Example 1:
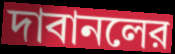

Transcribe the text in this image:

দাবানলের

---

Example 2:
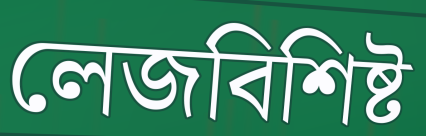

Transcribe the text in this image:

লেজবিশিষ্ট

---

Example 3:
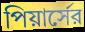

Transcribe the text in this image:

পিয়ার্সের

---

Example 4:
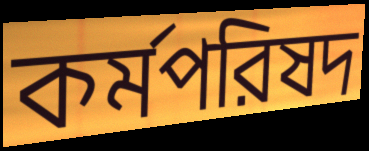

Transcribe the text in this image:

কর্মপরিষদ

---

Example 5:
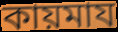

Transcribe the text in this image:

কায়মায